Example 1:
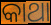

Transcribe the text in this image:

କାଥା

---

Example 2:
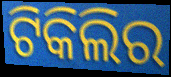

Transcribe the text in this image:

ଟିକିଲିର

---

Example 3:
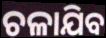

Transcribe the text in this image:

ଚଳାଯିବ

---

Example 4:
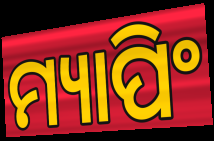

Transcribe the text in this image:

ମ୍ୟାପିଂ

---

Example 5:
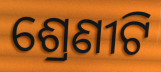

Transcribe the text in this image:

ଶ୍ରେଣୀଟି